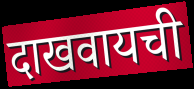
दाखवायची